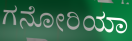
ಗನೋರಿಯಾ